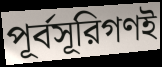
পূর্বসূরিগণই